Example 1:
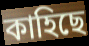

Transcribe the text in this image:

কাহিছে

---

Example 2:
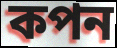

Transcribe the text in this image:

কপন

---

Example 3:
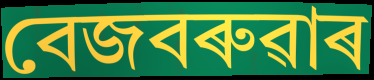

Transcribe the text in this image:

বেজবৰুৱাৰ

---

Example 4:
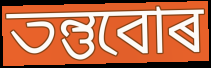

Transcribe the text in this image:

তন্তুবোৰ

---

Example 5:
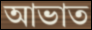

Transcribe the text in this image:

আভাত